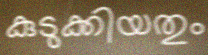
കുടുക്കിയതും